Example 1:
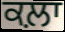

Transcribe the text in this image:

ਕਲ਼ਾ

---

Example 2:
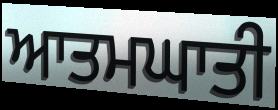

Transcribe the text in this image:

ਆਤਮਘਾਤੀ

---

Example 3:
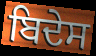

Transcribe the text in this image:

ਬਿਦੇਸ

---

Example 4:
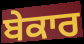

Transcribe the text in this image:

ਬੇਕਾਰ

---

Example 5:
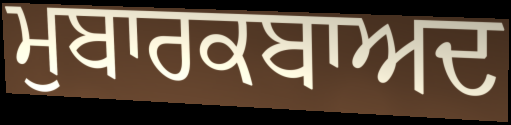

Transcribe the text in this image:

ਮੁਬਾਰਕਬਾਅਦ